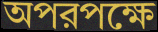
অপরপক্ষে